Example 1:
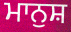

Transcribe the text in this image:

ਮਾਨੁਸ਼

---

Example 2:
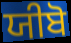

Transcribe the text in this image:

ਯੀਬੋ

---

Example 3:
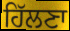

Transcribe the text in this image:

ਹਿੱਲਣਾ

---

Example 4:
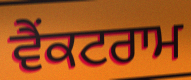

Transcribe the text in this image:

ਵੈਂਕਟਰਾਮ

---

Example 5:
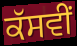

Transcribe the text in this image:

ਕੱਸਵੀਂ